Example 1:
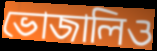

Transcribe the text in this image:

ভোজালিও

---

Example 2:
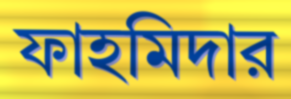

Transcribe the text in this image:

ফাহমিদার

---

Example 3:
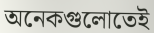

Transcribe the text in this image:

অনেকগুলোতেই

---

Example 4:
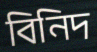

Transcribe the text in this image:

বিনিদ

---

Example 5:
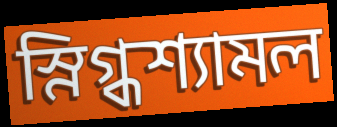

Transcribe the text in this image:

স্নিগ্ধশ্যামল